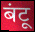
बंटू